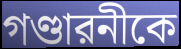
গণ্ডারনীকে